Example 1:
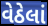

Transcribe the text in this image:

વેઠેલાં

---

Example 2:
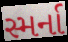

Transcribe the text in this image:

સ્મર્ના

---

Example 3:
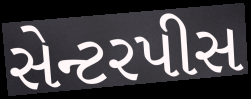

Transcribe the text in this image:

સેન્ટરપીસ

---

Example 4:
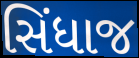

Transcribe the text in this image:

સિંધાજ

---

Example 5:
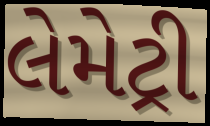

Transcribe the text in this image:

લેમેટ્રી